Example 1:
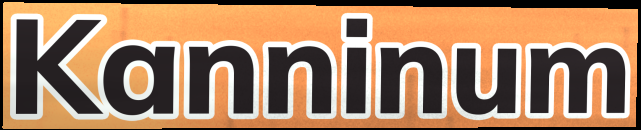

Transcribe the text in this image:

Kanninum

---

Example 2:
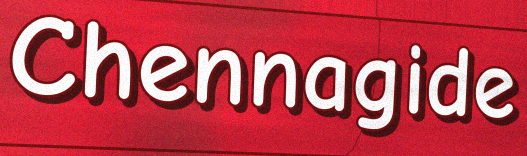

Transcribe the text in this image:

Chennagide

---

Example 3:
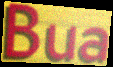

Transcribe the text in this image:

Bua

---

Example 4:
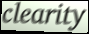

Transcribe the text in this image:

clearity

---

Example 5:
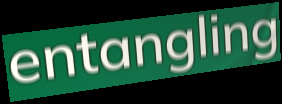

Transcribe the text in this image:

entangling